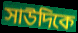
সাউদিকে